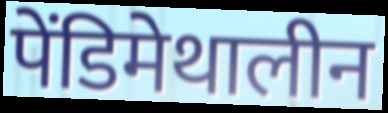
पेंडिमेथालीन